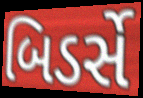
બિડર્સે